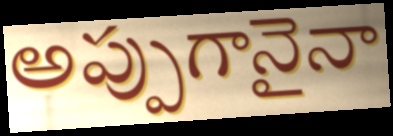
అప్పుగానైనా